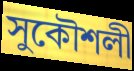
সুকৌশলী